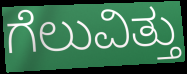
ಗೆಲುವಿತ್ತು